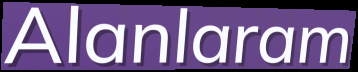
Alanlaram